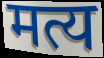
मत्य